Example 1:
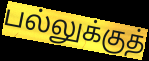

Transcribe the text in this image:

பல்லுக்குத்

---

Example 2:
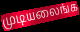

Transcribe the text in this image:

முடியலைங்க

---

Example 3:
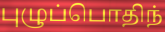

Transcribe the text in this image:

புழுப்பொதிந்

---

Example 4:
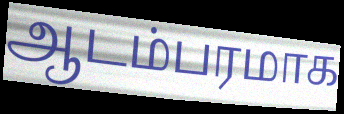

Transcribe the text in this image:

ஆடம்பரமாக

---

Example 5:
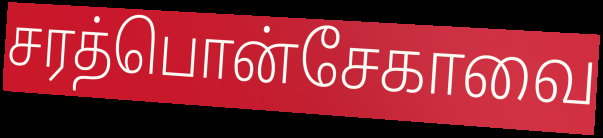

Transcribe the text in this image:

சரத்பொன்சேகாவை